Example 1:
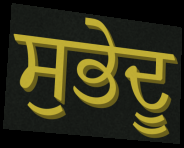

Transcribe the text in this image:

ਸੁਭੇਦੂ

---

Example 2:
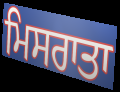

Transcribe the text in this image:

ਮਿਸਰਾਤਾ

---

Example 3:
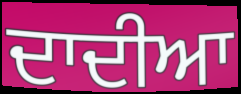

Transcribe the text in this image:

ਦਾਦੀਆ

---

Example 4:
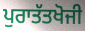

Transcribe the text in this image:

ਪੁਰਾਤੱਤਖੋਜੀ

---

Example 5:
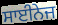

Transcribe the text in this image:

ਸਾਈਨੇਜ